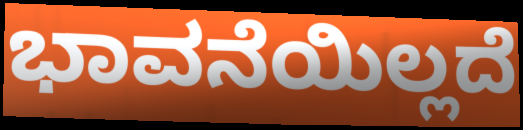
ಭಾವನೆಯಿಲ್ಲದೆ